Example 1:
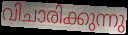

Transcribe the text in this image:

വിചാരിക്കുന്നു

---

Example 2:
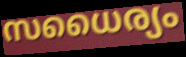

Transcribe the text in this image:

സധൈര്യം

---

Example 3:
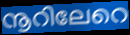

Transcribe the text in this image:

നൂറിലേറെ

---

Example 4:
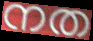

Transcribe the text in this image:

നത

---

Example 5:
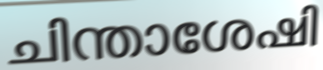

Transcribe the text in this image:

ചിന്താശേഷി